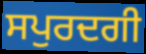
ਸਪੁਰਦਗੀ